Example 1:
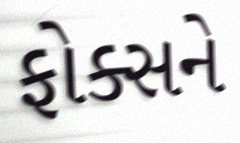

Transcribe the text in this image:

ફોક્સને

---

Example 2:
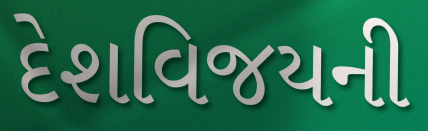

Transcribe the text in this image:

દેશવિજયની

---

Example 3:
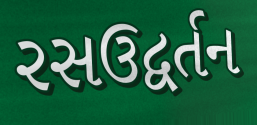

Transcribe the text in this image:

રસઉદ્વર્તન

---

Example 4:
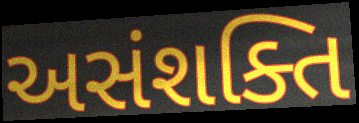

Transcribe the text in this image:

અસંશક્તિ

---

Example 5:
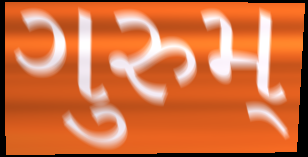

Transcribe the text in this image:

ગુરુમ્